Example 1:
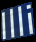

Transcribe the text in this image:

Illi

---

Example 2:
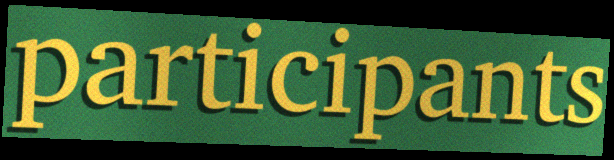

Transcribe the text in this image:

participants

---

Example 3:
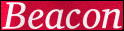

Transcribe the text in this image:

Beacon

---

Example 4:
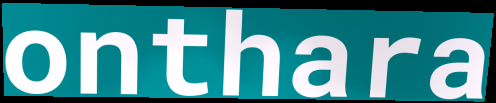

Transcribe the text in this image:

onthara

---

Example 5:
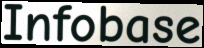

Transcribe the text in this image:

Infobase